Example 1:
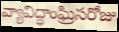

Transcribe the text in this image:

వ్యావిద్ధాంఘ్రిసరోజు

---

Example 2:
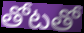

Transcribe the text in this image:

తోటతో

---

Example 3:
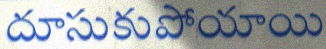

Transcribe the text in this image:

దూసుకుపోయాయి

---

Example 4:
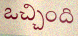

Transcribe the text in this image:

ఒచ్చింది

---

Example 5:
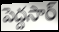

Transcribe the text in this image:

పెద్దసార్